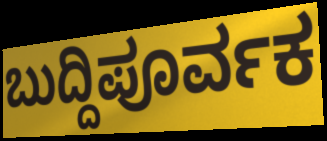
ಬುದ್ದಿಪೂರ್ವಕ